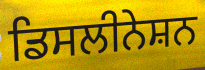
ਡਿਸਲੀਨੇਸ਼ਨ